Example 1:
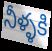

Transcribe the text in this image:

నీళ్ళకి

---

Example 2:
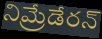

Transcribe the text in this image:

నిమ్రేడేరన్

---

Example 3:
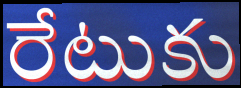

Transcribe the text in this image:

రేటుకు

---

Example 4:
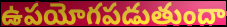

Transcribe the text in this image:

ఉపయోగపడుతుందా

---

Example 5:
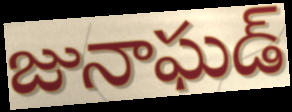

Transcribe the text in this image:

జునాఘడ్